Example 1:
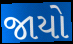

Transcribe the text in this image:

જાયો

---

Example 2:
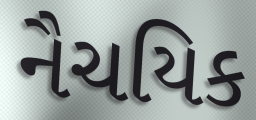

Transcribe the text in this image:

નૈચયિક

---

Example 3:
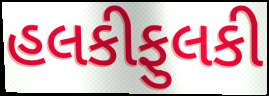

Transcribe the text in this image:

હલકીફુલકી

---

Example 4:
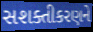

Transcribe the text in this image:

સશક્તીકરણને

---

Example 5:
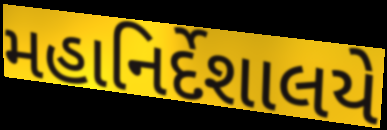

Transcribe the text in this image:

મહાનિર્દેશાલયે